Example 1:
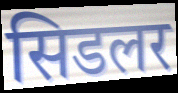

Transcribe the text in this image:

सिडलर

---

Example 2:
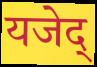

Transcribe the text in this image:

यजेद्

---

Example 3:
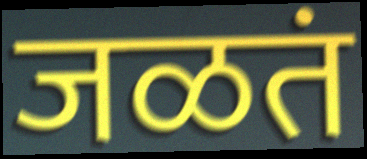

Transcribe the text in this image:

जळतं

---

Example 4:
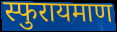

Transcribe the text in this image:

स्फुरायमाण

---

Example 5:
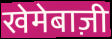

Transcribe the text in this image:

खेमेबाज़ी